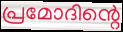
പ്രമോദിന്റെ